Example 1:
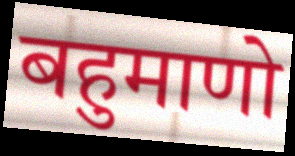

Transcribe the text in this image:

बहुमाणो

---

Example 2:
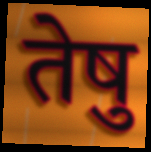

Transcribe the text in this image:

तेषु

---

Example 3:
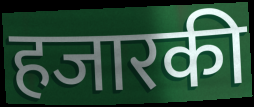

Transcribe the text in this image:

हजारकी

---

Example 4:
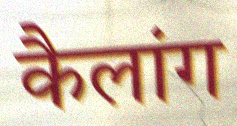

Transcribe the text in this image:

कैलांग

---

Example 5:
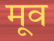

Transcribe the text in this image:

मूव